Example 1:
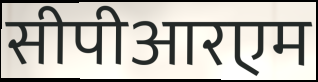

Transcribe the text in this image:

सीपीआरएम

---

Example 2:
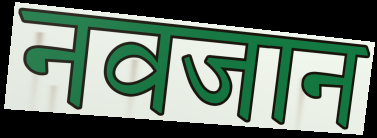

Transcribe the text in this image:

नवजान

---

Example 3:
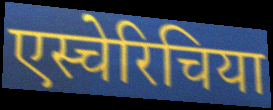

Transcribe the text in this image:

एस्चेरिचिया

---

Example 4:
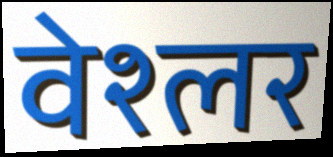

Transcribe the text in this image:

वेश्लर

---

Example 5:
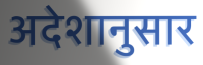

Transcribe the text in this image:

अदेशानुसार